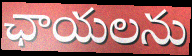
ఛాయలను